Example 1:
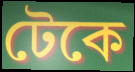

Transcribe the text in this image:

টেকে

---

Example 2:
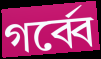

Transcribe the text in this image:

গর্ব্বে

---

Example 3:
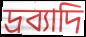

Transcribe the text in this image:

দ্রব্যাদি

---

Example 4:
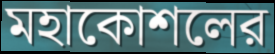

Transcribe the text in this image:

মহাকোশলের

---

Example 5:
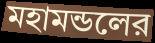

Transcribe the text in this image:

মহামন্ডলের